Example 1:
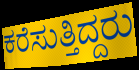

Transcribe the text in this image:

ಕರೆಸುತ್ತಿದ್ದರು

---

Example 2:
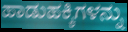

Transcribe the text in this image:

ಹಾಡುಹಕ್ಕಿಗಳನ್ನು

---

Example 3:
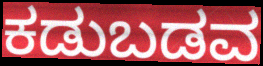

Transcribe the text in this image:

ಕಡುಬಡವ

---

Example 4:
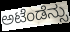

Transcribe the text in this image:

ಅಟೆಂಡೆನ್ಸು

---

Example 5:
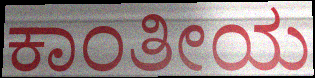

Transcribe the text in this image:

ಕಾಂತೀಯ